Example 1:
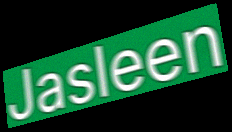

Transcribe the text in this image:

Jasleen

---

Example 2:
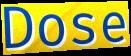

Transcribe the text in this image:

Dose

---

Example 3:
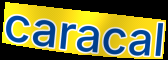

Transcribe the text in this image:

caracal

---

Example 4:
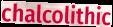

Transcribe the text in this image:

chalcolithic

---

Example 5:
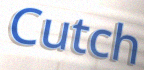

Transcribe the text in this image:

Cutch